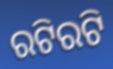
ରଟିରଟି